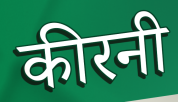
कीरनी